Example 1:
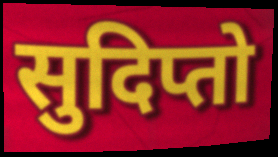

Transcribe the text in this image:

सुदिप्तो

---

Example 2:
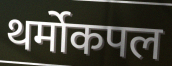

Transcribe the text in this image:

थर्मोकपल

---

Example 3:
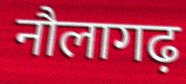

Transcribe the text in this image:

नौलागढ़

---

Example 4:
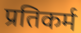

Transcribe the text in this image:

प्रतिकर्म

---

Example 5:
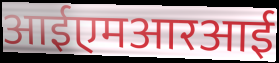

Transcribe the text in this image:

आईएमआरआई